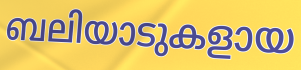
ബലിയാടുകളായ